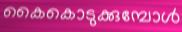
കൈകൊടുക്കുമ്പോൾ